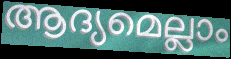
ആദ്യമെല്ലാം